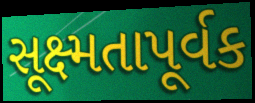
સૂક્ષ્મતાપૂર્વક